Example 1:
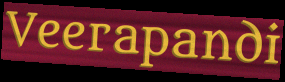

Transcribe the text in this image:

Veerapandi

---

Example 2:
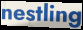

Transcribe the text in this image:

nestling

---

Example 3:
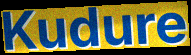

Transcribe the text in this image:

Kudure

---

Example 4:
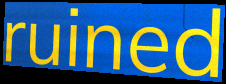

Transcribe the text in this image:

ruined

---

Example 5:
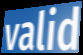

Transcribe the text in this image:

valid